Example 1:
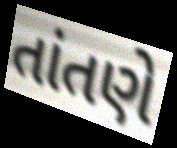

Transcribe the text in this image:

તાંતણે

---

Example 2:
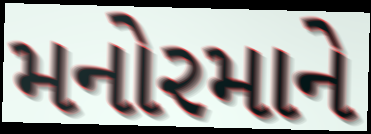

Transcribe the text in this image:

મનોરમાને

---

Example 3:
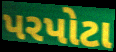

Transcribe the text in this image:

પરપોટા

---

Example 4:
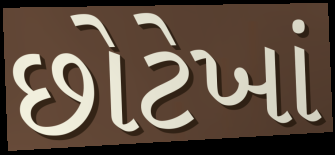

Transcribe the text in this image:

છોટેખાં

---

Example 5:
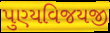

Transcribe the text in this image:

પુણ્યવિજયજી